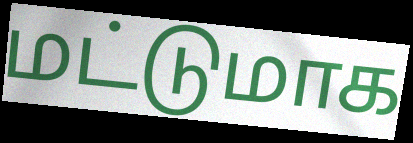
மட்டுமாக